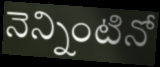
నెన్నింటినో